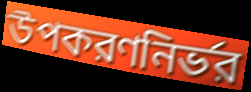
উপকরণনির্ভর